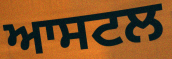
ਆਸਟਲ